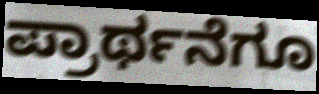
ಪ್ರಾರ್ಥನೆಗೂ